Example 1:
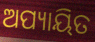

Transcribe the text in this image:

ଅପ୍ୟାୟିତ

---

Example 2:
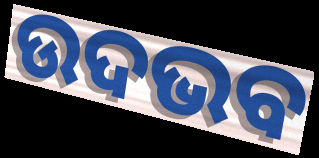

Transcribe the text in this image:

ଉଦଭବ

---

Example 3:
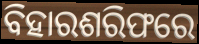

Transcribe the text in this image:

ବିହାରଶରିଫରେ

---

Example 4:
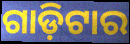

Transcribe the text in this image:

ଗାଡ଼ିଟାର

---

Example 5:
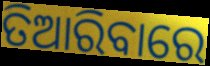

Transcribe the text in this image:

ତିଆରିବାରେ